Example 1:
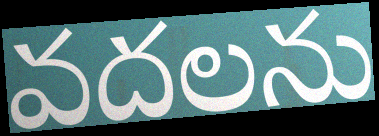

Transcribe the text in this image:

వదలను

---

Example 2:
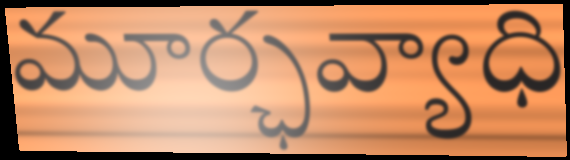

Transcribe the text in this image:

మూర్ఛవ్యాధి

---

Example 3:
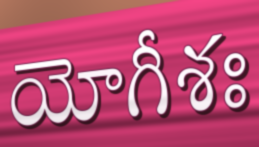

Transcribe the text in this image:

యోగీశః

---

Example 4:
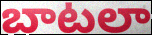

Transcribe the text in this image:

బాటలా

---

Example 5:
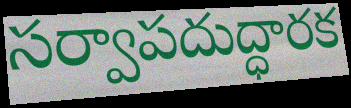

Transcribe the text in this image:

సర్వాపదుద్ధారక